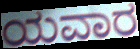
ಯವಾರ